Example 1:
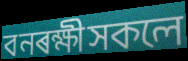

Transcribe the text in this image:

বনৰক্ষীসকলে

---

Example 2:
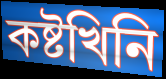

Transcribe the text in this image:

কষ্টখিনি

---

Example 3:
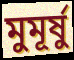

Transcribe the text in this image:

মুমূৰ্ষু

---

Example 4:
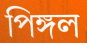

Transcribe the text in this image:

পিঙ্গল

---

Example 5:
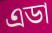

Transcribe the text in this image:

এডা